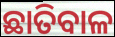
ଛାତିବାଳ